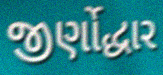
જીર્ણોદ્ધાર